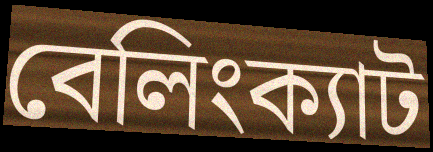
বেলিংক্যাট